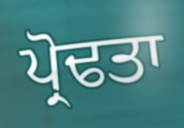
ਪ੍ਰੋਢਤਾ